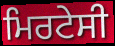
ਮਿਰਟੇਸੀ